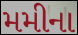
મમીના